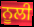
ਨੂਲੀ